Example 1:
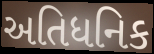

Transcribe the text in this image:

અતિધનિક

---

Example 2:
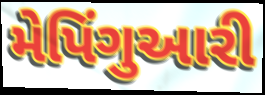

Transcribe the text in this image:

મેપિંગુઆરી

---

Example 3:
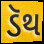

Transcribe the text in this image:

ડૅથ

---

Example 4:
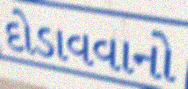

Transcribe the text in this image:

દોડાવવાનો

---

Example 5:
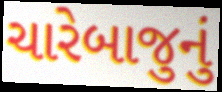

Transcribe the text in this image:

ચારેબાજુનું